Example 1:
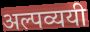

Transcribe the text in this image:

अल्पव्ययी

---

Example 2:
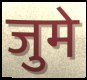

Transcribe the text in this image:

जुमे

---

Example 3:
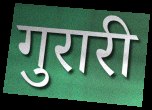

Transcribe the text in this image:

गुरारी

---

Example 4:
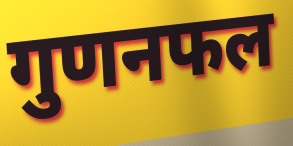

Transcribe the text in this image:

गुणनफल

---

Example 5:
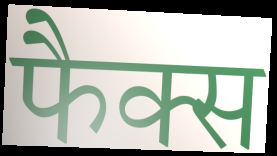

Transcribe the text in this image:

फैक्स